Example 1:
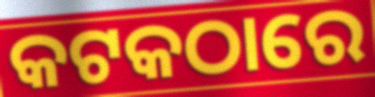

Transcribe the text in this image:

କଟକଠାରେ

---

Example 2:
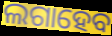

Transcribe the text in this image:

ଲଗାହେବ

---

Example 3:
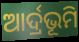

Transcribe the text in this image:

ଆର୍ଦ୍ରଭୂମି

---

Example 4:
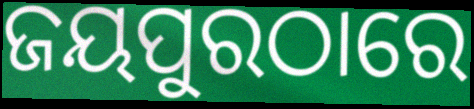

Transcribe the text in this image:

ଜୟପୁରଠାରେ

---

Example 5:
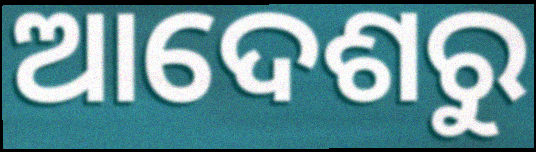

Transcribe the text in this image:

ଆଦେଶରୁ